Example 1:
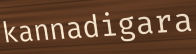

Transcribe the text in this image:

kannadigara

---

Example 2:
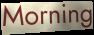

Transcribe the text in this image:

Morning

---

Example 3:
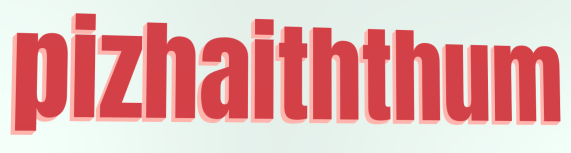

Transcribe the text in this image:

pizhaiththum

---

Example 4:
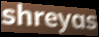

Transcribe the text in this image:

shreyas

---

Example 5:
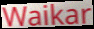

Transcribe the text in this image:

Waikar